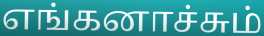
எங்கனாச்சும்